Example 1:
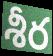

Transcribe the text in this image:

శీర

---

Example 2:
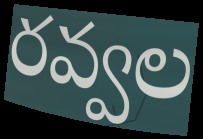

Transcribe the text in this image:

రవ్వల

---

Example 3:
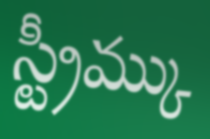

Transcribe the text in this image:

స్ట్రీమ్కు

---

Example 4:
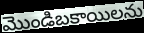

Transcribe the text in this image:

మొండిబకాయిలను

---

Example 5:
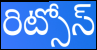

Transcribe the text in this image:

రిట్సోస్